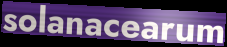
solanacearum